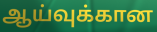
ஆய்வுக்கான